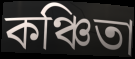
কঞ্চিতা